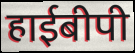
हाईबीपी